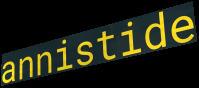
annistide